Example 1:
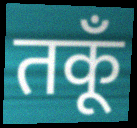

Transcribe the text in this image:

तकूँ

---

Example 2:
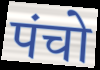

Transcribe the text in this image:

पंचो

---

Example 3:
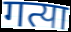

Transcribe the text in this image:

गत्या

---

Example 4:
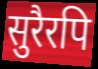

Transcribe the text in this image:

सुरैरपि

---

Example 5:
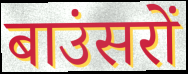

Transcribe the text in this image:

बाउंसरों